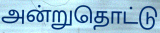
அன்றுதொட்டு